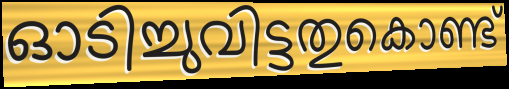
ഓടിച്ചുവിട്ടതുകൊണ്ട്